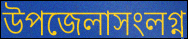
উপজেলাসংলগ্ন